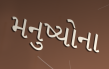
મનુષ્યોના